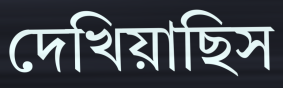
দেখিয়াছিস